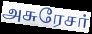
அசுரேசர்